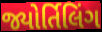
જ્યોર્તિલિંગ